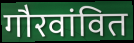
गौरवांवित